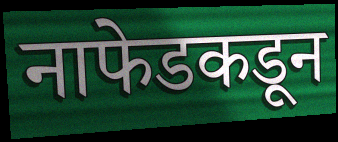
नाफेडकडून